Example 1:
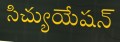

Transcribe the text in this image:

సిచ్యుయేషన్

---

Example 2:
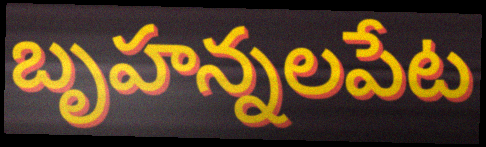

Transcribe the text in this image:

బృహన్నలపేట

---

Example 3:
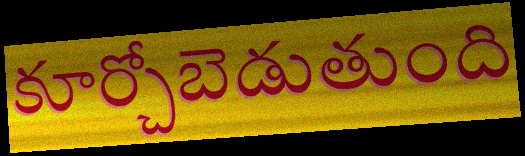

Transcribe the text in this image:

కూర్చోబెడుతుంది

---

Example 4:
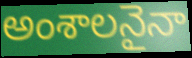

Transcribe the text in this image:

అంశాలనైనా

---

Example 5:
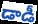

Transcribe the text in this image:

డాడీ